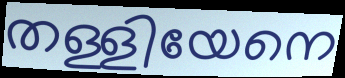
തള്ളിയേനെ